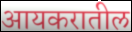
आयकरातील